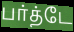
பர்த்டே